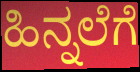
ಹಿನ್ನಲೆಗೆ